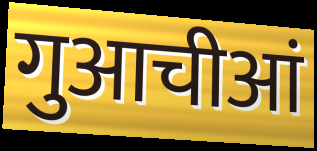
गुआचीआं